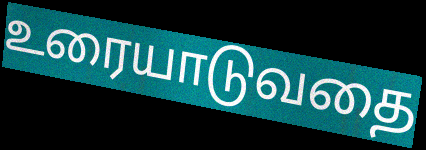
உரையாடுவதை